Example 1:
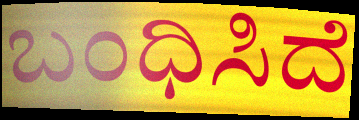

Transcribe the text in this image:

ಬಂಧಿಸಿದೆ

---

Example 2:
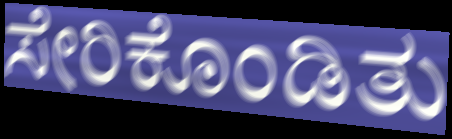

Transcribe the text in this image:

ಸೇರಿಕೊಂಡಿತು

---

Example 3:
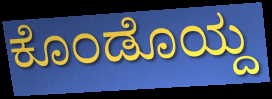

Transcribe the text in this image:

ಕೊಂಡೊಯ್ದ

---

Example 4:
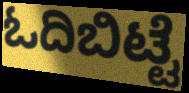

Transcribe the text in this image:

ಓದಿಬಿಟ್ಟೆ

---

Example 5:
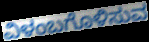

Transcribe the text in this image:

ವಿಳಂಬಗೊಳಿಸುವ